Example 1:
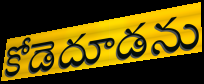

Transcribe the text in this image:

కోడెదూడను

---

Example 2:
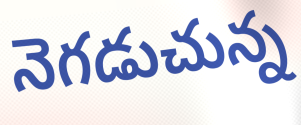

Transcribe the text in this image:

నెగడుచున్న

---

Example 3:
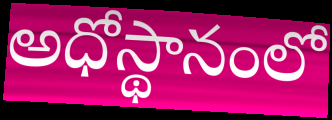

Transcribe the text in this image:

అధోస్థానంలో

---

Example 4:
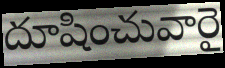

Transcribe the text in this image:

దూషించువారై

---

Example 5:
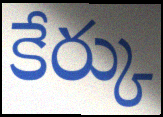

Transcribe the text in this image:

కేర్కు